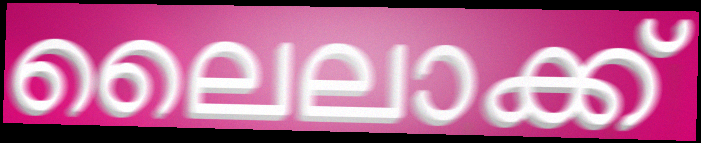
ലൈലാക്ക്